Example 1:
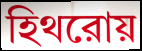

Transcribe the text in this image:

হিথরোয়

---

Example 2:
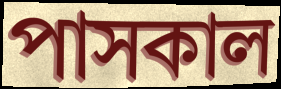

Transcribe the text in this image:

পাসকাল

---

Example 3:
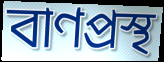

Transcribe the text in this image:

বাণপ্রস্থ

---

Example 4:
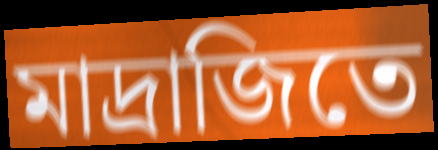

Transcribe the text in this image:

মাদ্রাজিতে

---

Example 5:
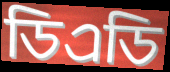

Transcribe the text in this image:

ডিএডি